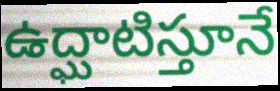
ఉద్ఘాటిస్తూనే